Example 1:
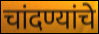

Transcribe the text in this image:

चांदण्यांचे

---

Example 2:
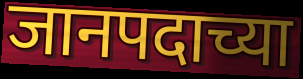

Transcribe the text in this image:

जानपदाच्या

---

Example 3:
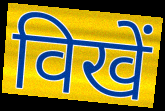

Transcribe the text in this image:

विखें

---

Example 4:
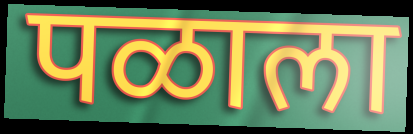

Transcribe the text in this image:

पळाला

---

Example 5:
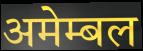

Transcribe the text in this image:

अमेम्बल